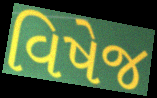
વિષેજ